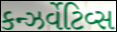
કન્ઝર્વેટિવ્સ